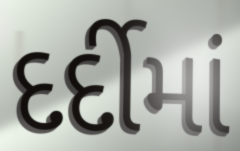
દર્દીમાં